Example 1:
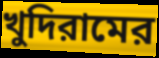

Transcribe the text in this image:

খুদিরামের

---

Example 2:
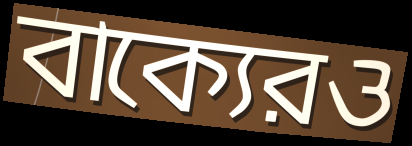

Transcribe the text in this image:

বাক্যেরও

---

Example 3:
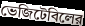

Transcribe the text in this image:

ভেজিটেবিলের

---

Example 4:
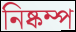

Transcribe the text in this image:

নিষ্কম্প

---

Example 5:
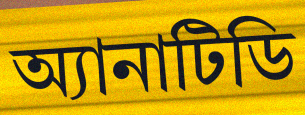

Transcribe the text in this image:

অ্যানাটিডি